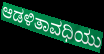
ಆಡಳಿತಾವಧಿಯು